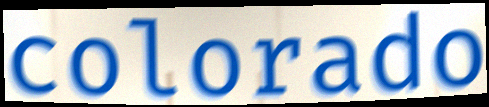
colorado